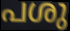
പശു